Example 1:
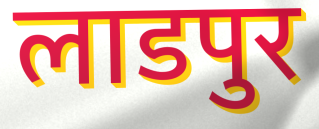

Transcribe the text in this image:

लाडपुर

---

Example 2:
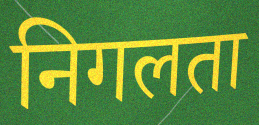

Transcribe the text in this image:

निगलता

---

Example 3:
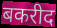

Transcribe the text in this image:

बकरीद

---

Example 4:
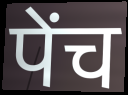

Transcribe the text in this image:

पेंच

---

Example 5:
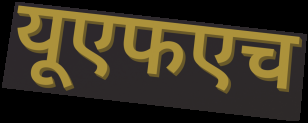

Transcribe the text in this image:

यूएफएच